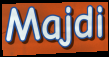
Majdi